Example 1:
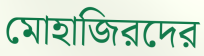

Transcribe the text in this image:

মোহাজিরদের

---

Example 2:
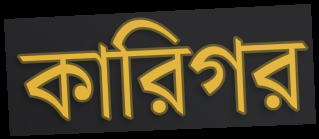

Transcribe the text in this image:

কারিগর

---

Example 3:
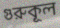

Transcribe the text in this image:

গুরুকূল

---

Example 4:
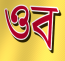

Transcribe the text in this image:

ওব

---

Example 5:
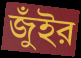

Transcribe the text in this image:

জুঁইর